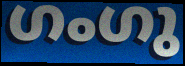
ഗംഗു